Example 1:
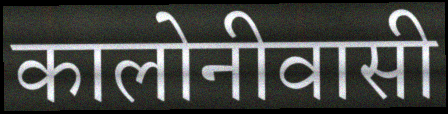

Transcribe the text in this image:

कालोनीवासी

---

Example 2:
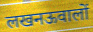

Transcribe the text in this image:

लखनऊवालों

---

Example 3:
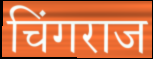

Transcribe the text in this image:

चिंगराज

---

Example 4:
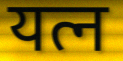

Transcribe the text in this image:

यत्न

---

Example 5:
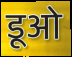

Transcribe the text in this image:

डूओ